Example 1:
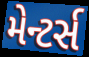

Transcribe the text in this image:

મેન્ટર્સ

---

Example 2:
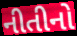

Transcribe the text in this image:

નીતીનો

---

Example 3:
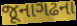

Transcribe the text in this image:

જૂનાગઢના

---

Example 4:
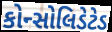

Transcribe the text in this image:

કોન્સોલિડેટેડ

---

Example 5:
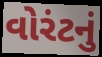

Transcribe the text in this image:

વોરંટનું